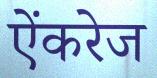
ऐंकरेज